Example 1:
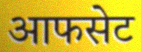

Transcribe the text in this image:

आफसेट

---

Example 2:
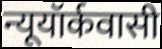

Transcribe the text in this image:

न्यूयॉर्कवासी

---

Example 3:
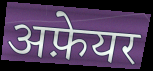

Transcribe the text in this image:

अफ़ेयर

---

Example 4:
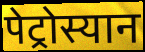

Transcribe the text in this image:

पेट्रोस्यान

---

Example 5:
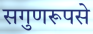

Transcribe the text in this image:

सगुणरूपसे